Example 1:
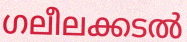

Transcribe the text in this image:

ഗലീലക്കടൽ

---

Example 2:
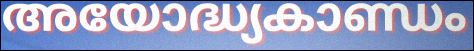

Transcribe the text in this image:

അയോദ്ധ്യകാണ്ഡം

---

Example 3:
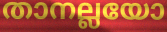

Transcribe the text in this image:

താനല്ലയോ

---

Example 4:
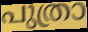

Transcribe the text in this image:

പുത്രാ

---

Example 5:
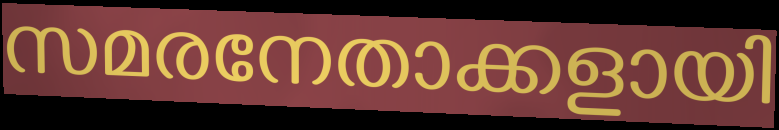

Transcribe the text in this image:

സമരനേതാക്കളായി